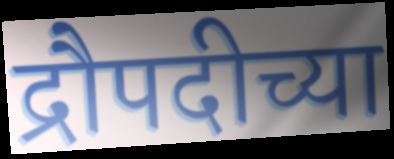
द्रौपदीच्या